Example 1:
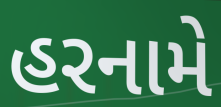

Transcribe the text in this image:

હરનામે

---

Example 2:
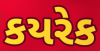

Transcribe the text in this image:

કયરેક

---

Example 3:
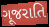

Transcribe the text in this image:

ગૂજરાતિ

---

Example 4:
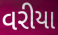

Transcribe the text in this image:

વરીયા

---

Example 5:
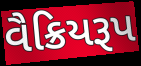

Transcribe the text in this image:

વૈક્રિયરૂપ